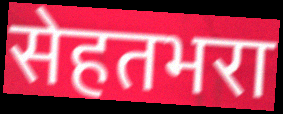
सेहतभरा